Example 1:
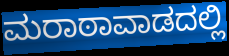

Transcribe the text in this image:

ಮರಾಠಾವಾಡದಲ್ಲಿ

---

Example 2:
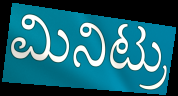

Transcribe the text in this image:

ಮಿನಿಟ್ರು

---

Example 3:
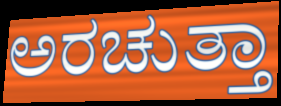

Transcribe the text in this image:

ಅರಚುತ್ತಾ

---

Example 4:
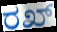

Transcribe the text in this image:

ರಖ್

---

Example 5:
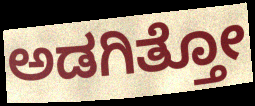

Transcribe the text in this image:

ಅಡಗಿತ್ತೋ